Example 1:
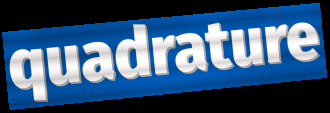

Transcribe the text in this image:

quadrature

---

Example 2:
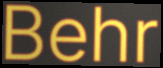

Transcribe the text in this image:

Behr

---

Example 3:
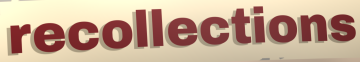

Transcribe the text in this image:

recollections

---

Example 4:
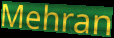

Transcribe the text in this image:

Mehran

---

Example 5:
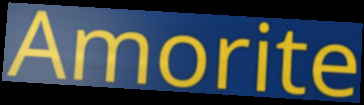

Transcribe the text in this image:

Amorite